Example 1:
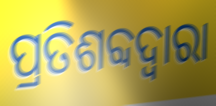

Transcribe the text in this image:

ପ୍ରତିଶବ୍ଦଦ୍ୱାରା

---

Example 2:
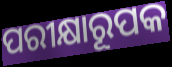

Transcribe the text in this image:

ପରୀକ୍ଷାରୂପକ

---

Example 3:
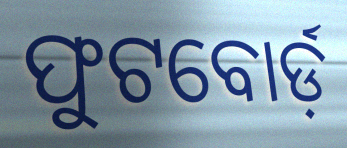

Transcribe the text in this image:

ଫୁଟବୋର୍ଡ଼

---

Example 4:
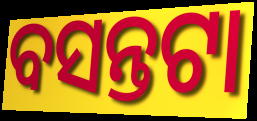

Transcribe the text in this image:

ବସନ୍ତଟା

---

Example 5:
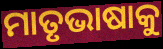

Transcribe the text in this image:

ମାତୃଭାଷାକୁ